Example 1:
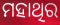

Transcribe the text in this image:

ମହାଥିର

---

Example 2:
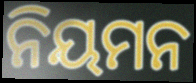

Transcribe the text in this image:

ନିୟମନ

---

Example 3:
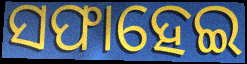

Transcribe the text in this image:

ସଫାହେଇ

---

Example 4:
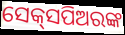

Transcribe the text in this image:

ସେକ୍‌ସପିଅରଙ୍କ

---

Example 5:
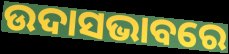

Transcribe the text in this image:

ଉଦାସଭାବରେ